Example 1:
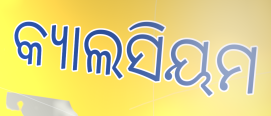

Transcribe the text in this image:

କ୍ୟାଲସିୟମ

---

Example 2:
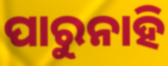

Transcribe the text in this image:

ପାରୁନାହି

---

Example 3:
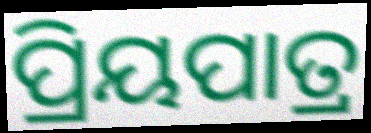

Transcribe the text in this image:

ପ୍ରିୟପାତ୍ର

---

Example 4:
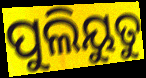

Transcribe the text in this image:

ପୁଲିୟୁତୁ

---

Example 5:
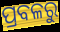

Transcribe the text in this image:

ପ୍ରବଳରୁ